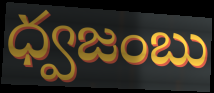
ధ్వజంబు